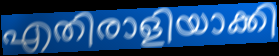
എതിരാളിയാക്കി